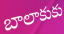
బాలాకుకు